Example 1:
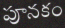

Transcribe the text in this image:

పూనకం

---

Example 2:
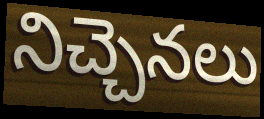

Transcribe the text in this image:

నిచ్చెనలు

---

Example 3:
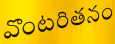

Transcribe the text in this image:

వొంటరితనం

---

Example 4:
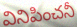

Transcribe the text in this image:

వినిపించనీ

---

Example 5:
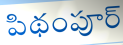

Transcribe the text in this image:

పిథంపూర్